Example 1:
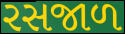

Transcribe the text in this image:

રસજાળ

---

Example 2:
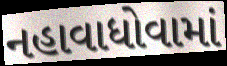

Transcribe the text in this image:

નહાવાધોવામાં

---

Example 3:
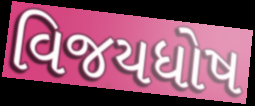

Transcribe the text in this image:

વિજયધોષ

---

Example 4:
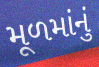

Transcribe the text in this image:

મૂળમાંનું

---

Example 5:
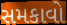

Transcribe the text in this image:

સમકાવો